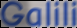
Galili